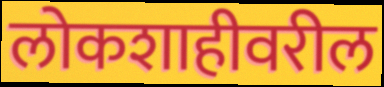
लोकशाहीवरील